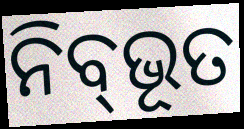
ନିବ୍‌ଭୂତ